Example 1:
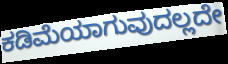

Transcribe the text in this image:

ಕಡಿಮೆಯಾಗುವುದಲ್ಲದೇ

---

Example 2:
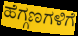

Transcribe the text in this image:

ಹೆಗ್ಗಣಗಳಿಗೆ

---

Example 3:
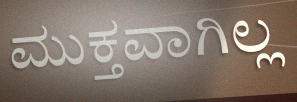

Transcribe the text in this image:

ಮುಕ್ತವಾಗಿಲ್ಲ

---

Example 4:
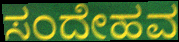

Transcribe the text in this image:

ಸಂದೇಹವ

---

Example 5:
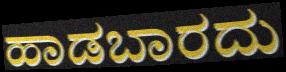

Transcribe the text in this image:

ಹಾಡಬಾರದು